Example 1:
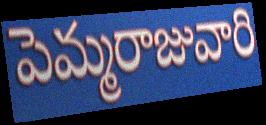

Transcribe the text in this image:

పెమ్మరాజువారి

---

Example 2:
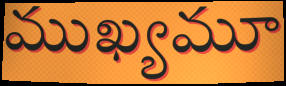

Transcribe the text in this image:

ముఖ్యమూ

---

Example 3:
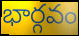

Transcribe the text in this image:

భార్గవం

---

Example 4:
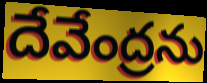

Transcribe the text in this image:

దేవేంద్రను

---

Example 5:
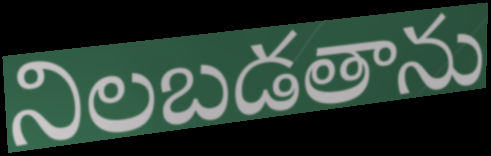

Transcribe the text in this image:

నిలబడతాను